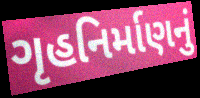
ગૃહનિર્માણનું